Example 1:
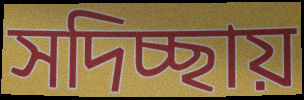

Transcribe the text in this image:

সদিচ্ছায়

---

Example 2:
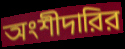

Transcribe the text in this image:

অংশীদারির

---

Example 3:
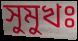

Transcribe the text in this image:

সুমুখঃ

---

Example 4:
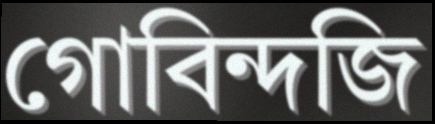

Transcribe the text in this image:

গোবিন্দজি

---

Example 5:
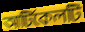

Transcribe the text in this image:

আর্টিকেলটি